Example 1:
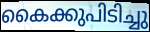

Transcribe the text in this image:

കൈക്കുപിടിച്ചു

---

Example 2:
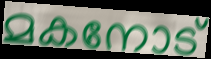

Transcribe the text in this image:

മകനോട്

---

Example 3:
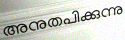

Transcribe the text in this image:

അനുതപിക്കുന്നു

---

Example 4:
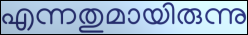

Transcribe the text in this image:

എന്നതുമായിരുന്നു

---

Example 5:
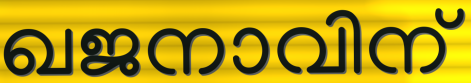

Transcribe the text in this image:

ഖജനാവിന്